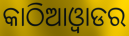
କାଠିଆଓ୍ୱାଡର